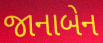
જાનાબેન